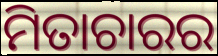
ମିତାଚାରର